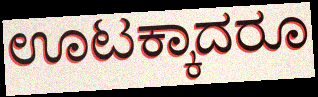
ಊಟಕ್ಕಾದರೂ